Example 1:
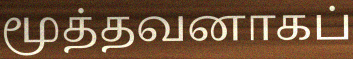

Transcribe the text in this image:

மூத்தவனாகப்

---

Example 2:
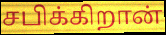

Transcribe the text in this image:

சபிக்கிறான்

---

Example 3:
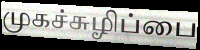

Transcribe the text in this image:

முகச்சுழிப்பை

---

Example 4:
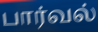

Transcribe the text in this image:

பார்வல்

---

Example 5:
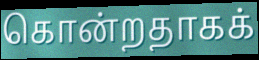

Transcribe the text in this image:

கொன்றதாகக்